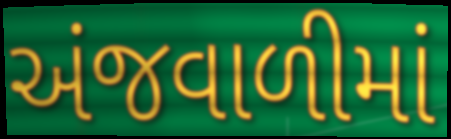
અંજવાળીમાં